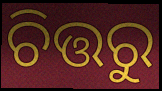
ଚିତ୍ତରୁ